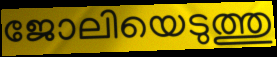
ജോലിയെടുത്തു